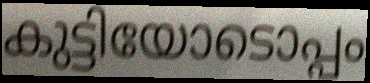
കുട്ടിയോടൊപ്പം